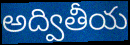
అద్వితీయ